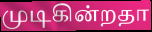
முடிகின்றதா